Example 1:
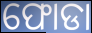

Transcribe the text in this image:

ଫୋଡା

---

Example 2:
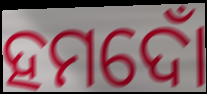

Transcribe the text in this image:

ହମଦୋଁ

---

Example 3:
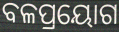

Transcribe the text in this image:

ବଳପ୍ରୟୋଗ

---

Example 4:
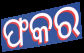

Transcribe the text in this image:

ଫକର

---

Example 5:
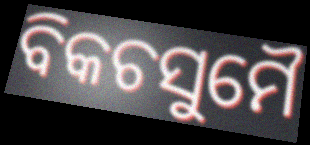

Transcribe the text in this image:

ବିକଚସୁମୈ